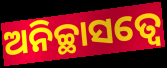
ଅନିଚ୍ଛାସତ୍ୱେ